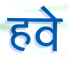
हवे